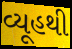
વ્યૂહથી